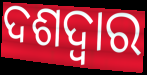
ଦଶଦ୍ୱାର